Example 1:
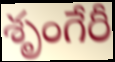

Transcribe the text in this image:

శృంగేరీ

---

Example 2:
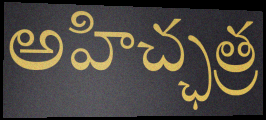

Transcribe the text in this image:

అహిచ్ఛత్ర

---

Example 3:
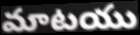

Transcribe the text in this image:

మాటయు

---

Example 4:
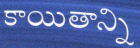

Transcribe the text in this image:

కాయితాన్ని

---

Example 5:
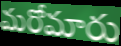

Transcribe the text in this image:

మరోమారు